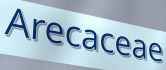
Arecaceae